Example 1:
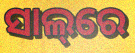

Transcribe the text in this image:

ସାଲ୍‌ରେ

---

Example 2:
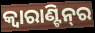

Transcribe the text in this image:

କ୍ବାରାଣ୍ଟିନ୍‌ର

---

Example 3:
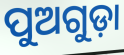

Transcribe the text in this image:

ପୁଅଗୁଡ଼ା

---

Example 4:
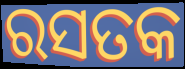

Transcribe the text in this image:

ରସତକ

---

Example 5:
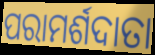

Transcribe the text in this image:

ପରାମର୍ଶଦାତା